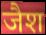
जैश